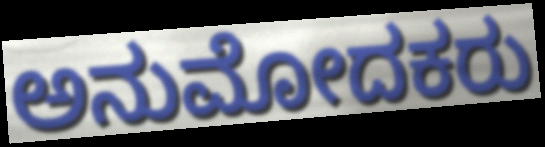
ಅನುಮೋದಕರು